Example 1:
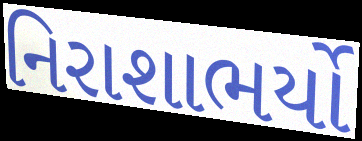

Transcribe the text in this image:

નિરાશાભર્યો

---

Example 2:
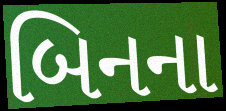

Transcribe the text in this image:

બિનના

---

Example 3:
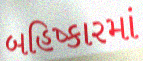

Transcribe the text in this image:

બહિષ્કારમાં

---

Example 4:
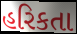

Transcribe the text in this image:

હરિકતા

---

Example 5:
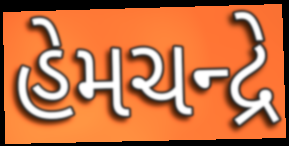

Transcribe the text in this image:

હેમચન્દ્રે